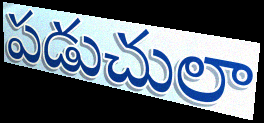
పడుచులా